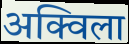
अक्विला